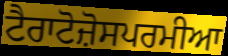
ਟੈਰਾਟੋਜ਼ੋਸਪਰਮੀਆ